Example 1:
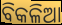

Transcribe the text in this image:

ବିକଳିଆ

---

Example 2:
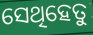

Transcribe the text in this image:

ସେଥିହେତୁ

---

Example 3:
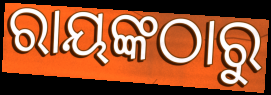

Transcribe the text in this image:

ରାୟଙ୍କଠାରୁ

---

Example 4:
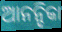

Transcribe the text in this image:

ଆନନ୍ଦିକା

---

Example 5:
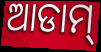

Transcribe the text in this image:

ଆଡାମ୍